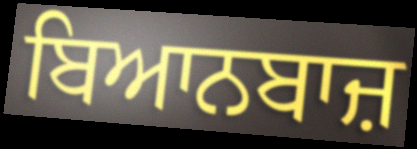
ਬਿਆਨਬਾਜ਼